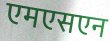
एमएसएन